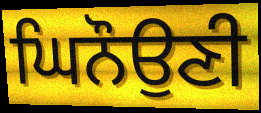
ਘਿਨੌਉਣੀ